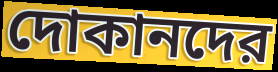
দোকানদের